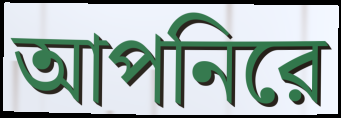
আপনিরে